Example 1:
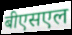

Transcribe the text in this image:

बीएसएल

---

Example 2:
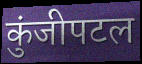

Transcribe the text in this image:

कुंजीपटल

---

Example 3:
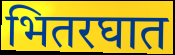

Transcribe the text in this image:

भितरघात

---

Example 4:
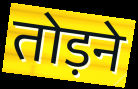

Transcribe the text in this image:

तोड़ने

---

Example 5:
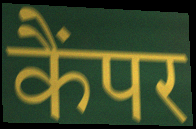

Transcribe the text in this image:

कैंपर